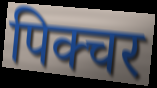
पिक्चर